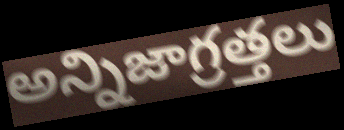
అన్నిజాగ్రత్తలు